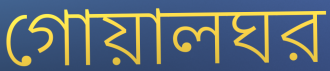
গোয়ালঘর